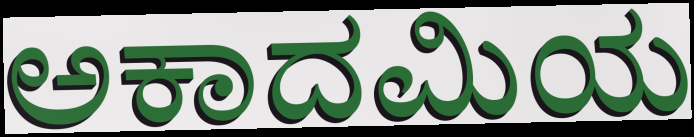
ಅಕಾದಮಿಯ